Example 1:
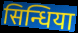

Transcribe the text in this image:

सिन्धिया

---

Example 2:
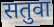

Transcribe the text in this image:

सतुवा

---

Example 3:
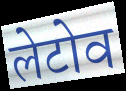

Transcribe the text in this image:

लेटोव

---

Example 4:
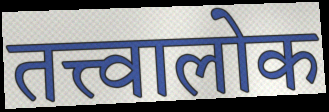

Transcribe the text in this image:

तत्त्वालोक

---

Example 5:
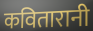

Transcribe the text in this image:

कवितारानी